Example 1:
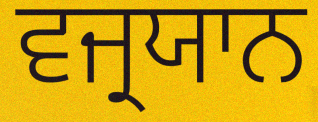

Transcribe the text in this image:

ਵਜ੍ਰਯਾਨ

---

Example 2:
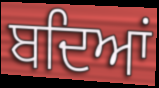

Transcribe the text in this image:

ਬਦਿਆਂ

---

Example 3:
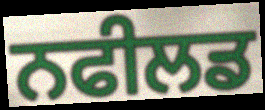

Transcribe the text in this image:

ਨਫੀਲਡ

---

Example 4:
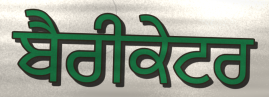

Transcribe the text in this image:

ਬੈਰੀਕੇਟਰ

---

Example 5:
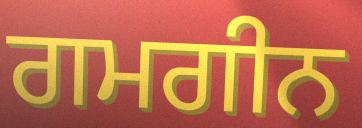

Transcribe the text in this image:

ਗਮਗੀਨ